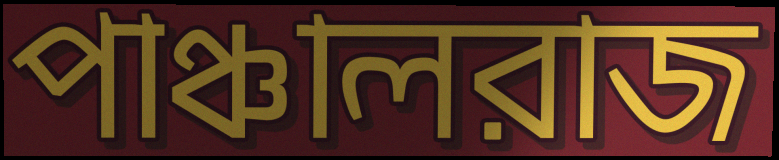
পাঞ্চালরাজ